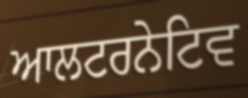
ਆਲਟਰਨੇਟਿਵ